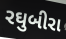
રઘુબીરા